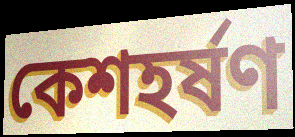
কেশহর্ষণ